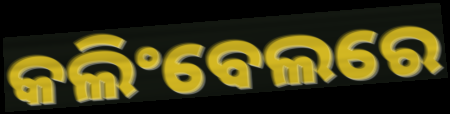
କଲିଂବେଲରେ